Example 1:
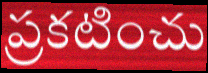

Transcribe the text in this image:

ప్రకటించు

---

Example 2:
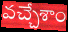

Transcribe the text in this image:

వచ్చేశాం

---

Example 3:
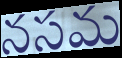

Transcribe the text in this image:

నసమ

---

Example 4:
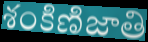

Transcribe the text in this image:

శంకిణిజాతి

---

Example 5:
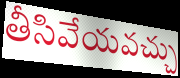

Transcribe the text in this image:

తీసివేయవచ్చు